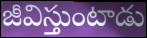
జీవిస్తుంటాడు